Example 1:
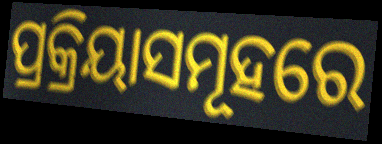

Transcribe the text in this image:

ପ୍ରକ୍ରିୟାସମୂହରେ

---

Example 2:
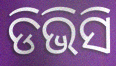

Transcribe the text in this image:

ଡିଭିସି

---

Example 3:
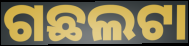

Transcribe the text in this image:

ଗଛଲଟା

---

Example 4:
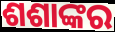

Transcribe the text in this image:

ଶଶାଙ୍କର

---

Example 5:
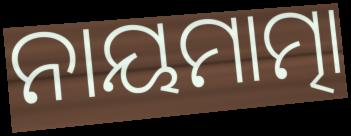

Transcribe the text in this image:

ନାୟମାତ୍ମା